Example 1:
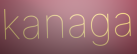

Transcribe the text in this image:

kanaga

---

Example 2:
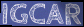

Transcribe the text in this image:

IGCAR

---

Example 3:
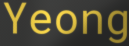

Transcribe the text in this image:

Yeong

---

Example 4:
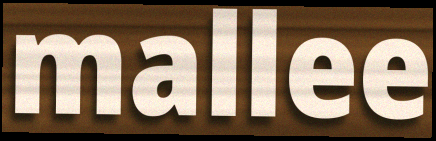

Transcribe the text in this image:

mallee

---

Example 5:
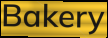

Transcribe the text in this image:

Bakery